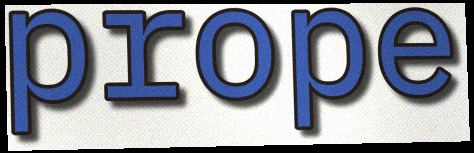
prope